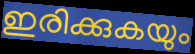
ഇരിക്കുകയും